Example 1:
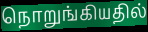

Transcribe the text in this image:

நொறுங்கியதில்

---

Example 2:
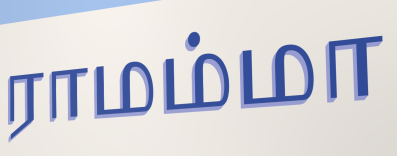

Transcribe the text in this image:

ராமம்மா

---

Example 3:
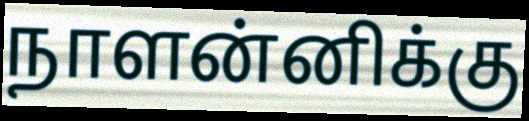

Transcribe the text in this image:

நாளன்னிக்கு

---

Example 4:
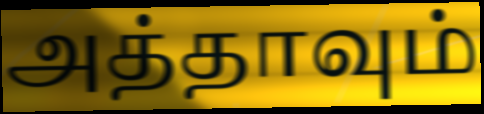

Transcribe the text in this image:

அத்தாவும்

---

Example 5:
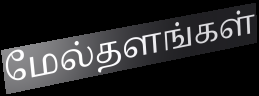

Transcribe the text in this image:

மேல்தளங்கள்